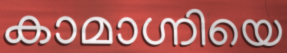
കാമാഗ്നിയെ